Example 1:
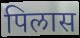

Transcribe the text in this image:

पिलास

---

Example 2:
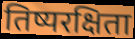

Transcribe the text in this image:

तिष्यरक्षिता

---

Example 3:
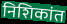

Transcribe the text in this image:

निशिकांत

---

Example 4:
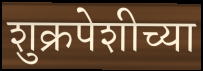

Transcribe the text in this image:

शुक्रपेशीच्या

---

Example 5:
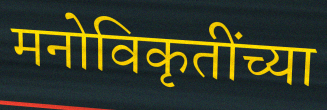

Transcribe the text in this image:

मनोविकृतींच्या